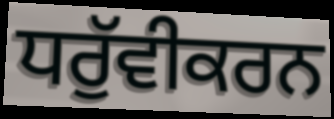
ਧਰੁੱਵੀਕਰਨ